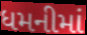
ધમનીમાં